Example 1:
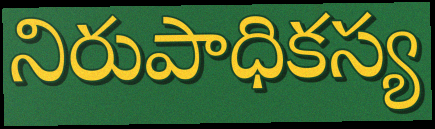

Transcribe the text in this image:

నిరుపాధికస్య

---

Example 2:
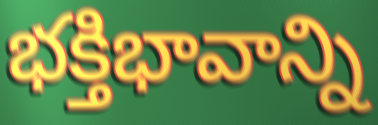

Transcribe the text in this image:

భక్తిభావాన్ని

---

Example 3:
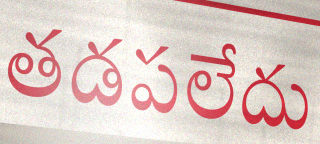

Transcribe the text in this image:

తడపలేదు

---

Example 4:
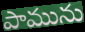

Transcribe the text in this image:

పామును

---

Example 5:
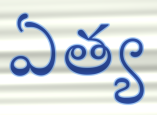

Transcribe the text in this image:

ఏత్య